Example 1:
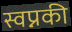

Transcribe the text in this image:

स्वप्नकी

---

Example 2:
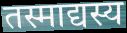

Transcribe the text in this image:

तस्माद्यस्य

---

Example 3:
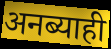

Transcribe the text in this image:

अनब्याही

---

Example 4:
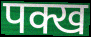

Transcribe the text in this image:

पक्ख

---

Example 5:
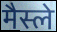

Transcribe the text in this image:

मैस्ले